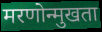
मरणोन्मुखता